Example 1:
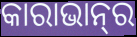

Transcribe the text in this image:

କାରାଭାନ୍‍ର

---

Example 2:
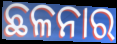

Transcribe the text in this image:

ଛଳନାର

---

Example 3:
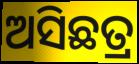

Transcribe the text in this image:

ଅସିଛତ୍ର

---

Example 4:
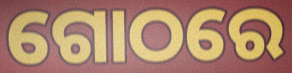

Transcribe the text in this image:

ଗୋଠରେ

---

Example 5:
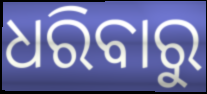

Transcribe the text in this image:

ଧରିବାରୁ